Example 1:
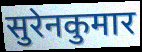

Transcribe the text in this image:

सुरेनकुमार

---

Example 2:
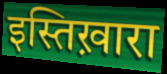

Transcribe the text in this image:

इस्तिख़ारा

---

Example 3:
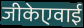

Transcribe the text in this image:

जीकेएवाई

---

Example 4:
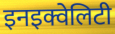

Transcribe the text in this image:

इनइक्वेलिटी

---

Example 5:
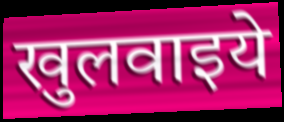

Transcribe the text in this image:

खुलवाइये